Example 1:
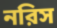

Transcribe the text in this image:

নরিস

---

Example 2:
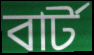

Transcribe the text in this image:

বার্ট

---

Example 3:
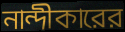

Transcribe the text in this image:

নান্দীকারের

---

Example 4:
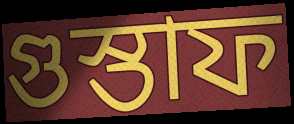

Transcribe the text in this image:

গুস্তাফ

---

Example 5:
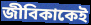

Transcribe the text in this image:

জীবিকাকেই